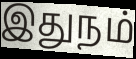
இதுநம்